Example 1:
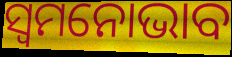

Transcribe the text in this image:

ସ୍ୱମନୋଭାବ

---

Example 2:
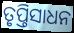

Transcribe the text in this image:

ତୃପ୍ତିସାଧନ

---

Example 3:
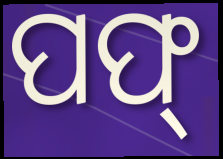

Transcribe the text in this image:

ପଫ୍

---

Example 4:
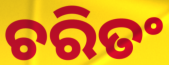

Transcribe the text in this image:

ଚରିତଂ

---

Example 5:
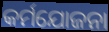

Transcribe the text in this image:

କର୍ମଯୋଜନା